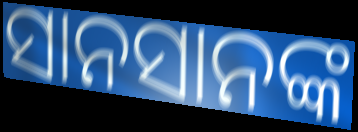
ସାନସାନଙ୍କ